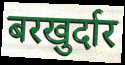
बरखुर्दार